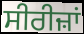
ਸੀਰੀਜ਼ਾਂ